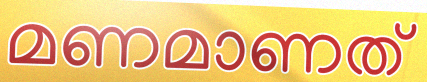
മണമാണത്